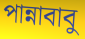
পান্নাবাবু